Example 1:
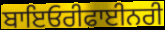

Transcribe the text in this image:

ਬਾਇਓਰੀਫਾਈਨਰੀ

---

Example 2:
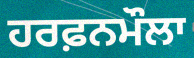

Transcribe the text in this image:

ਹਰਫ਼ਨਮੌਲਾ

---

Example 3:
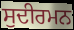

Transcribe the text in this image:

ਸੁਦੀਰਮਨ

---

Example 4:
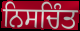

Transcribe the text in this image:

ਨਿਸਚਿੰਤ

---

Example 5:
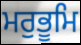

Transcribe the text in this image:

ਮਰੁਭੂਮਿ